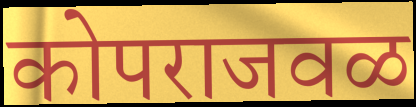
कोपराजवळ